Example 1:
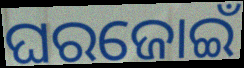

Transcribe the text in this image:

ଘରଜୋଇଁ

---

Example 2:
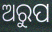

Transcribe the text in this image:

ଅରୁପ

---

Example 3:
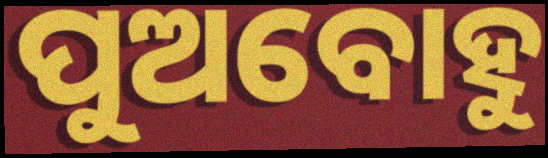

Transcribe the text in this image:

ପୁଅବୋହୁ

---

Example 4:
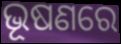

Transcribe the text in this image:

ଭୂଷଣରେ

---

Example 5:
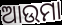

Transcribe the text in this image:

ଆଉମା